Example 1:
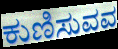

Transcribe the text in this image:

ಕುಣಿಸುವವ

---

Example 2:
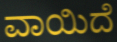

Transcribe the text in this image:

ವಾಯಿದೆ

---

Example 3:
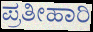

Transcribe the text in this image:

ಪ್ರತೀಹಾರಿ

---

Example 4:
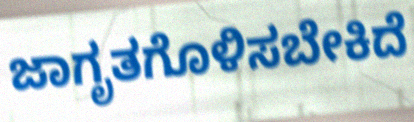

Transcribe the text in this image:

ಜಾಗೃತಗೊಳಿಸಬೇಕಿದೆ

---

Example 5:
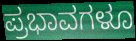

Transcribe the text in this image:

ಪ್ರಭಾವಗಳೂ